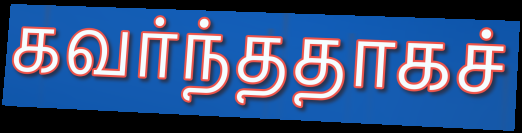
கவர்ந்ததாகச்